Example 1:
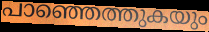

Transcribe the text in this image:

പാഞ്ഞെത്തുകയും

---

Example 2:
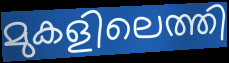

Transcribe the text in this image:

മുകളിലെത്തി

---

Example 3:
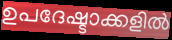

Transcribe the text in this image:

ഉപദേഷ്ടാക്കളിൽ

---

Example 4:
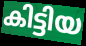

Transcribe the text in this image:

കിട്ടിയ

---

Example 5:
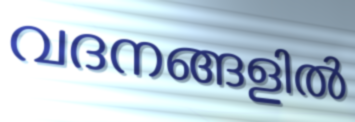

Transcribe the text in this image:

വദനങ്ങളിൽ